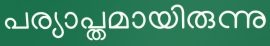
പര്യാപ്തമായിരുന്നു